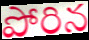
పోరిన